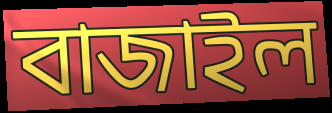
বাজাইল